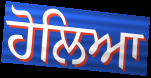
ਹੋਲਿਆ